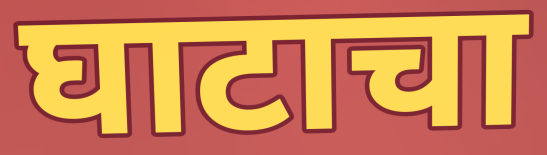
घाटाचा